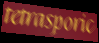
tetrasporic